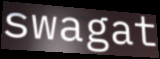
swagat